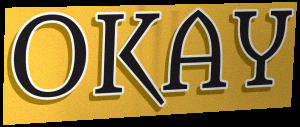
OKAY